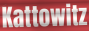
Kattowitz